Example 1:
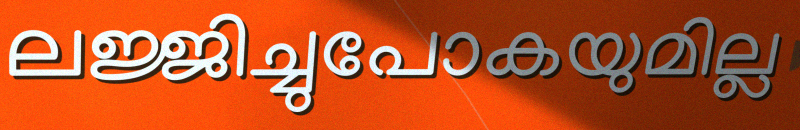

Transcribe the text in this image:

ലജ്ജിച്ചുപോകയുമില്ല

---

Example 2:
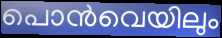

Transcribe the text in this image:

പൊൻവെയിലും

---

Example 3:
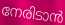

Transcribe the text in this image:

നേരിടാൻ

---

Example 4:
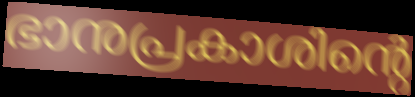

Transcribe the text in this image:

ഭാനുപ്രകാശിന്റെ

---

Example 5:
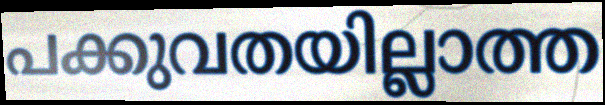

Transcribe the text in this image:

പക്കുവതയില്ലാത്ത